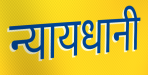
न्यायधानी